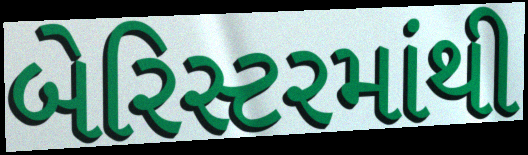
બેરિસ્ટરમાંથી